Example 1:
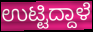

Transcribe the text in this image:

ಉಟ್ಟಿದ್ದಾಳೆ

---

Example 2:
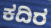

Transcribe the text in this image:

ಕದಿರ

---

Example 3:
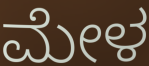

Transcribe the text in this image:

ಮೇಳ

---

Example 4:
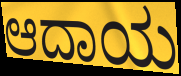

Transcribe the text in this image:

ಆದಾಯ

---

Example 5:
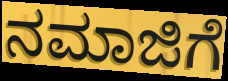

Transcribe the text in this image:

ನಮಾಜಿಗೆ